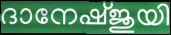
ദാനേഷ്ജുയി